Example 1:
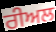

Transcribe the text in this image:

ਰੀਅਲ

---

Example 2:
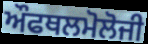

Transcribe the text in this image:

ਔਫਥਲਮੋਲੋਜੀ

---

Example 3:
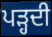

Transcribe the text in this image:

ਪੜ੍ਹਦੀ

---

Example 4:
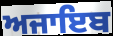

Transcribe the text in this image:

ਅਜਾਇਬ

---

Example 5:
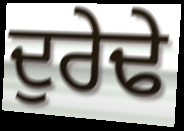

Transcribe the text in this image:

ਦੁਰੇਢੇ